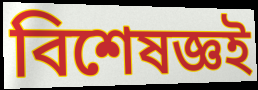
বিশেষজ্ঞই